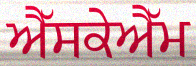
ਐੱਸਕੇਐੱਮ